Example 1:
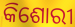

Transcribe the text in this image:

କିଶୋରୀ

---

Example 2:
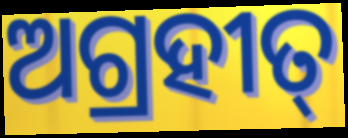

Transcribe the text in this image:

ଅଗ୍ରହୀତ୍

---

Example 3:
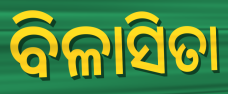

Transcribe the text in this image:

ବିଳାସିତା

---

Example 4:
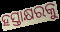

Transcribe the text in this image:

ହସ୍ତାକ୍ଷରକୁ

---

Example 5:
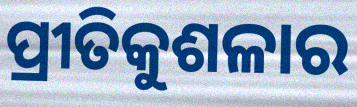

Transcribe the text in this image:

ପ୍ରୀତିକୁଶଳାର